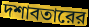
দশাবতারের